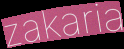
zakaria